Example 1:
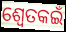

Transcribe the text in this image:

ଶ୍ୱେତକଇଁ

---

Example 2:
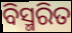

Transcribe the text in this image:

ବିସ୍ମରିତ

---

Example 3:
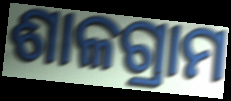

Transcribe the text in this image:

ଶାଳଗ୍ରାମ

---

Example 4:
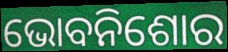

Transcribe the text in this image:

ଭୋବନିଶୋର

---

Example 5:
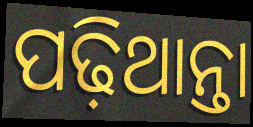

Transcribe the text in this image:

ପଢ଼ିଥାନ୍ତା